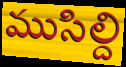
ముసిల్ది